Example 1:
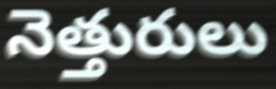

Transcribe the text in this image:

నెత్తురులు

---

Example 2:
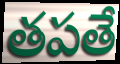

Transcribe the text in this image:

తపతే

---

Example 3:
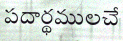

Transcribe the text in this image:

పదార్థములచే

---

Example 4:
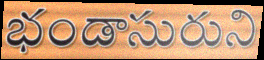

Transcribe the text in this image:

భండాసురుని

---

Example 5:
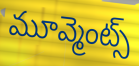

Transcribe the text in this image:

మూవ్మెంట్స్